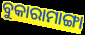
ବୁକାରାମାଙ୍ଗା